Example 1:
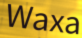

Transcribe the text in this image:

Waxa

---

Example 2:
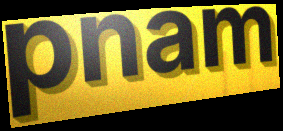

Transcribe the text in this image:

pnam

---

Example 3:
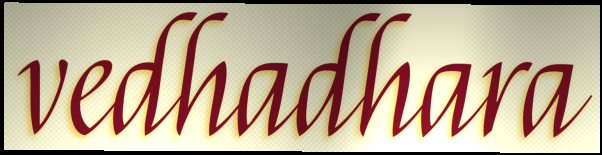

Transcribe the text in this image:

vedhadhara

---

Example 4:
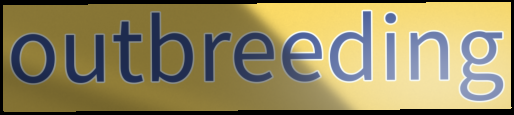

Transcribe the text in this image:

outbreeding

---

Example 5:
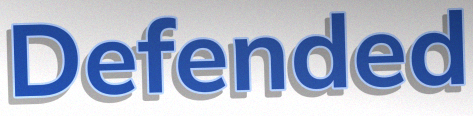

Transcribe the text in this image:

Defended